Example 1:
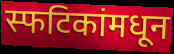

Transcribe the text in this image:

स्फटिकांमधून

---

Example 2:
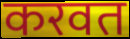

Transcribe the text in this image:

करवत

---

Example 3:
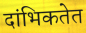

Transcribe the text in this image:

दांभिकतेत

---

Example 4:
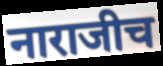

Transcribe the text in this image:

नाराजीच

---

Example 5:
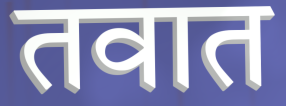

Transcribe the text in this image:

तवात